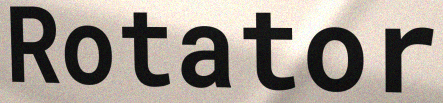
Rotator